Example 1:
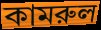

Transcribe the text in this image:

কামরুল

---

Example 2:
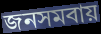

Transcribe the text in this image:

জনসমবায়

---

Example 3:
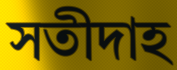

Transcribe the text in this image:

সতীদাহ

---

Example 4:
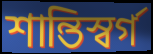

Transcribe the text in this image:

শান্তিস্বর্গ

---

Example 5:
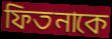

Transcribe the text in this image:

ফিতনাকে